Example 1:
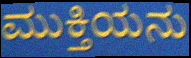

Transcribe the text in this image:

ಮುಕ್ತಿಯನು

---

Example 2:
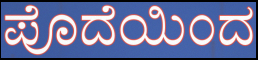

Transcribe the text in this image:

ಪೊದೆಯಿಂದ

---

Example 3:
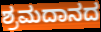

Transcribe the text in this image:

ಶ್ರಮದಾನದ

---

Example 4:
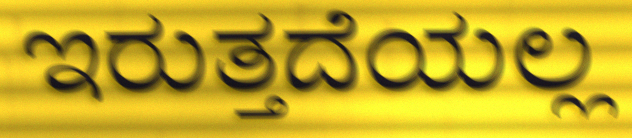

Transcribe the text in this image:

ಇರುತ್ತದೆಯಲ್ಲ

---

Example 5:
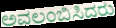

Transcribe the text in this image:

ಅವಲಂಬಿಸಿದರು